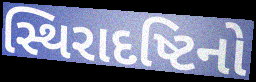
સ્થિરાદષ્ટિનો